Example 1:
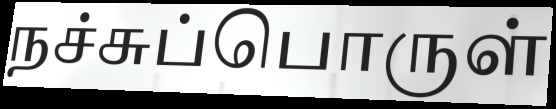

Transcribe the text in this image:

நச்சுப்பொருள்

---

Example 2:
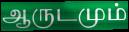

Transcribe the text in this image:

ஆருடமும்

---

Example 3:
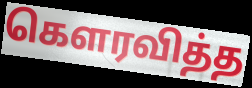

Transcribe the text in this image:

கெளரவித்த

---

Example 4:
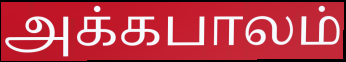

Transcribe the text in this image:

அக்கபாலம்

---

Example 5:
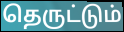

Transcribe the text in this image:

தெருட்டும்